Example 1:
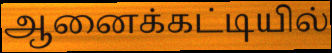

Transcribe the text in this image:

ஆனைக்கட்டியில்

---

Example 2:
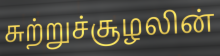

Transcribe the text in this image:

சுற்றுச்சூழலின்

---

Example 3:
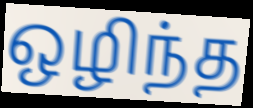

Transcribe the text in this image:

ஒழிந்த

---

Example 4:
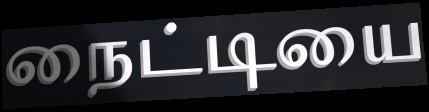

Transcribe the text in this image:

நைட்டியை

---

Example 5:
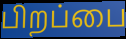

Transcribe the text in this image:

பிறப்பை